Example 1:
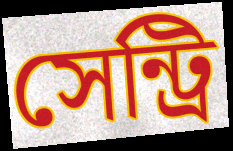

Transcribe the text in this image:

সেন্ট্রি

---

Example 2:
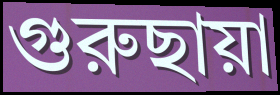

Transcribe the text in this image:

গুরুছায়া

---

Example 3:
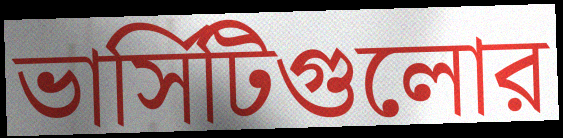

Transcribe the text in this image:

ভার্সিটিগুলোর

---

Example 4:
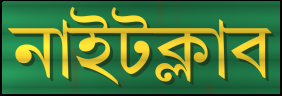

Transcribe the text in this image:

নাইটক্লাব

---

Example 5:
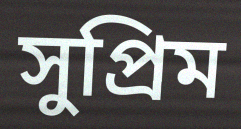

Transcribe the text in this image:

সুপ্রিম